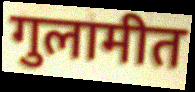
गुलामीत